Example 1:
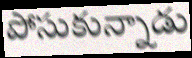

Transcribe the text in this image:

పోసుకున్నాడు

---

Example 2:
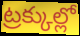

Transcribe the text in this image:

ట్రక్కుల్లో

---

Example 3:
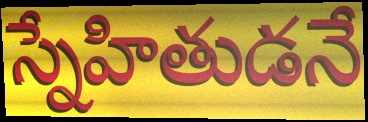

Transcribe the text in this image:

స్నేహితుడనే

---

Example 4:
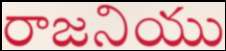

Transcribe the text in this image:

రాజనియు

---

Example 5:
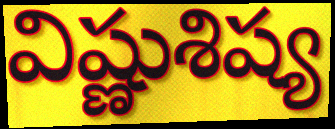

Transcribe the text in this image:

విష్ణుశిష్య